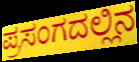
ಪ್ರಸಂಗದಲ್ಲಿನ